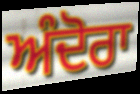
ਅੰਦੋਰਾ